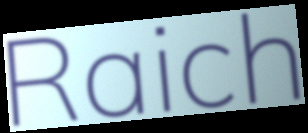
Raich